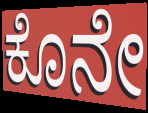
ಕೊನೇ